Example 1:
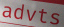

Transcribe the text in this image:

advts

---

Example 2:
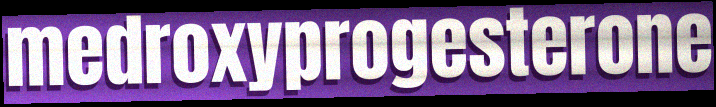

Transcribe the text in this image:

medroxyprogesterone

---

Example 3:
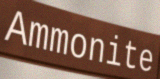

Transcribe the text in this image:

Ammonite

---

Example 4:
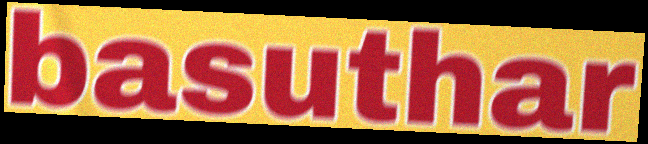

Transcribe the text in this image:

basuthar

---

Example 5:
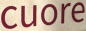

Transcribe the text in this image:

cuore